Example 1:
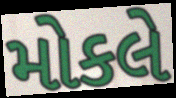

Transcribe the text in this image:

મોકલે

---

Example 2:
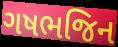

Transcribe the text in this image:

ગષભજિન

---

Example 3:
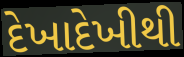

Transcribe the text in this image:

દેખાદેખીથી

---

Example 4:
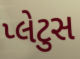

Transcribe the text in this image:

પ્લેટુસ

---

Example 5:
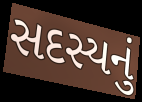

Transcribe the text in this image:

સદસ્યનું